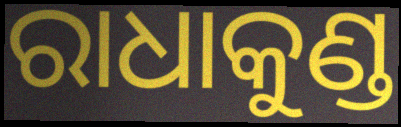
ରାଧାକୁଣ୍ଡ